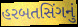
હરબતસિંગનું